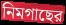
নিমগাছের